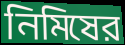
নিমিষের